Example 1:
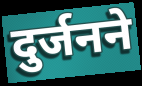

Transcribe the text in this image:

दुर्जनने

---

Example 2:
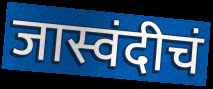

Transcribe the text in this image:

जास्वंदीचं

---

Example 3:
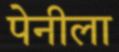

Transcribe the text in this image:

पेनीला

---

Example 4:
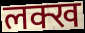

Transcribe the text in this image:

लक्ख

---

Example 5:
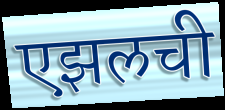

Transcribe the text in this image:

एझलची